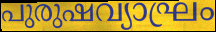
പുരുഷവ്യാഘ്രം